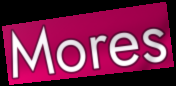
Mores